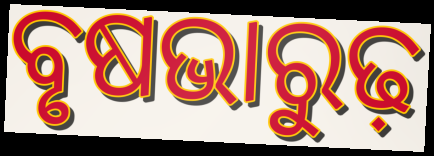
ବୃଷଭାରୁଢ଼